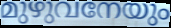
മുഴുവനേയും